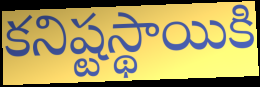
కనిష్టస్థాయికి